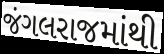
જંગલરાજમાંથી